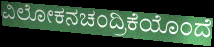
ವಿಲೋಕನಚಂದ್ರಿಕೆಯೊಂದೆ